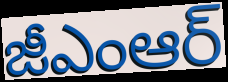
జీఎంఆర్